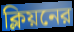
ক্লিয়নের